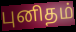
புனிதம்